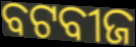
ବଟବୀଜ